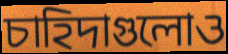
চাহিদাগুলোও